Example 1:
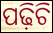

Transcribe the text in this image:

ପଢ଼ିଚି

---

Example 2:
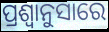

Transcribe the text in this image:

ପ୍ରଶ୍ବାନୁସାରେ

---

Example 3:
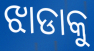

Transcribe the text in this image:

ଝାଡାକୁ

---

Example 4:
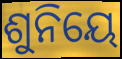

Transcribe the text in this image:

ଶୁନିୟେ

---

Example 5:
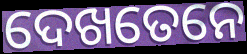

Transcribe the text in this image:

ଦେଖତେନେ